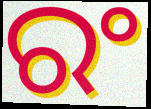
ରଂ